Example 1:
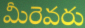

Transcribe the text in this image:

మీరెవరు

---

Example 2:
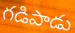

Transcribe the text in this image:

గడిపాడు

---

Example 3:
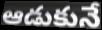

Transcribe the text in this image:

ఆడుకునే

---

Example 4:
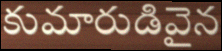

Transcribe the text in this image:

కుమారుడివైన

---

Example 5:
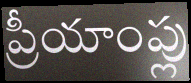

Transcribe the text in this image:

ప్రీయాంప్లు